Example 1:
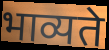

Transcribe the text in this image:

भाव्यते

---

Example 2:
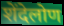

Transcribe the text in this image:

शेंदेलोण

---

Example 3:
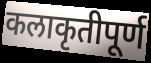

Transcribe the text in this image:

कलाकृतीपूर्ण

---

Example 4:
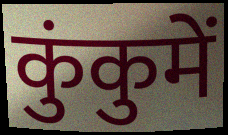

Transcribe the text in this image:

कुंकुमें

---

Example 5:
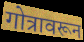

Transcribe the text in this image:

गोत्रावरून